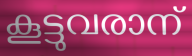
കൂട്ടുവരാന്